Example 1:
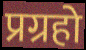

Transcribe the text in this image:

प्रग्रहो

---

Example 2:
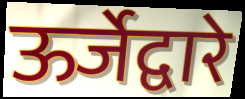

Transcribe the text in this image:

ऊर्जेद्वारे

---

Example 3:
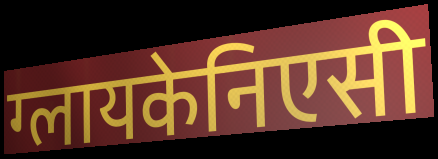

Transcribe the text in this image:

ग्लायकेनिएसी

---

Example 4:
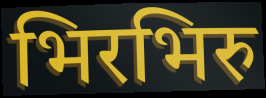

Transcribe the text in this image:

भिरभिरु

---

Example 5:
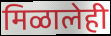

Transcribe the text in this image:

मिळालेही